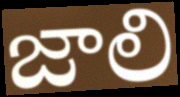
జాలి